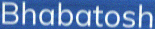
Bhabatosh